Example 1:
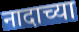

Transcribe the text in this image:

नादाच्या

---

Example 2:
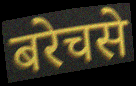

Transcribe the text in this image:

बरेचसे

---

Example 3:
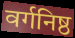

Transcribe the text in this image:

वर्गनिष्ठ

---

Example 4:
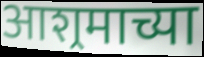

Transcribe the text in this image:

आश्रमाच्या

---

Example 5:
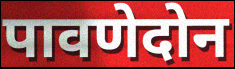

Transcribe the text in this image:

पावणेदोन